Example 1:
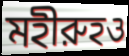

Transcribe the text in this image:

মহীরুহও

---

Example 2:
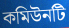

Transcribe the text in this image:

কমিউনটি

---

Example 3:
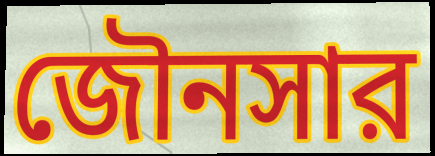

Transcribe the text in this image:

জৌনসার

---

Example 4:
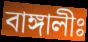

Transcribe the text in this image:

বাঙ্গালীঃ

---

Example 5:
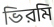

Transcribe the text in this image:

ভিরমি